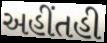
અહીંતહી